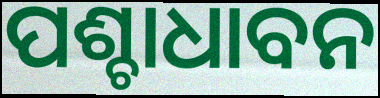
ପଶ୍ଚାଧାବନ